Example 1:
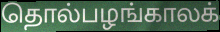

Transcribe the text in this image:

தொல்பழங்காலக்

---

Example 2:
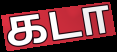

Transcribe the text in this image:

கடா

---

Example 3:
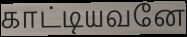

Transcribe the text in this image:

காட்டியவனே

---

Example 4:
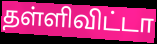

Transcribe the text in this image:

தள்ளிவிட்டா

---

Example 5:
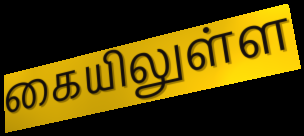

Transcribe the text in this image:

கையிலுள்ள